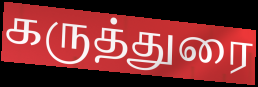
கருத்துரை